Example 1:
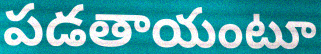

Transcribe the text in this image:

పడతాయంటూ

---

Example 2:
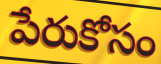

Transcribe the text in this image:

పేరుకోసం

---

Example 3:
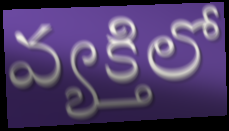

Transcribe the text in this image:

వ్యక్తిలో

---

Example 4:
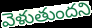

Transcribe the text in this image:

వెళుతుందని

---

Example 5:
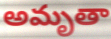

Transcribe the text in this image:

అమృతా